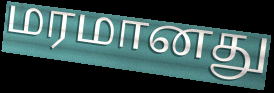
மரமானது